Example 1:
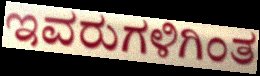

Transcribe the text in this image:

ಇವರುಗಳಿಗಿಂತ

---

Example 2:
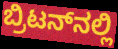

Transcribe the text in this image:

ಬ್ರಿಟನ್‌ನಲ್ಲಿ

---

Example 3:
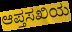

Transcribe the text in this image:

ಆಪ್ತಸಖಿಯ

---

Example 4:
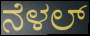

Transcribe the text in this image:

ನೆಳಲ್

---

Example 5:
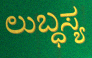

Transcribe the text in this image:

ಲುಬ್ಧಸ್ಯ